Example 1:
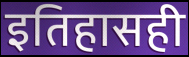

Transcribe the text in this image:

इतिहासही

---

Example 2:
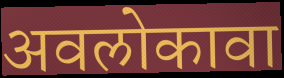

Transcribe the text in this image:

अवलोकावा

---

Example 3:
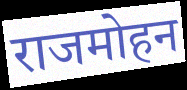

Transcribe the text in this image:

राजमोहन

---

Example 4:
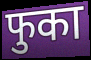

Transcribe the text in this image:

फुका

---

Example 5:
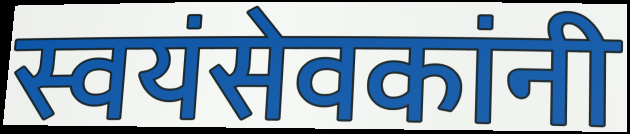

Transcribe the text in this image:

स्वयंसेवकांनी